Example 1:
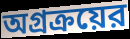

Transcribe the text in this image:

অগ্রক্রয়ের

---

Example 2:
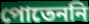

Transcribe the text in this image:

পোতেননি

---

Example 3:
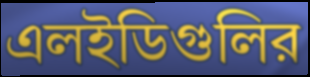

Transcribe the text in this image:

এলইডিগুলির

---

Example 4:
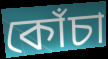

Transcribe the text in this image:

কোঁচা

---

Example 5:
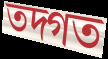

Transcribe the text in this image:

তদ্গত